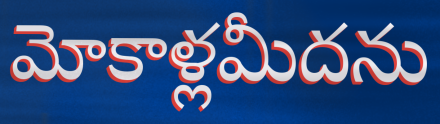
మోకాళ్లమీదను